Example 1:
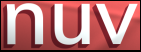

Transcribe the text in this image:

nuv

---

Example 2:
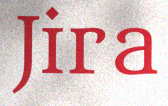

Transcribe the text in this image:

Jira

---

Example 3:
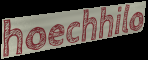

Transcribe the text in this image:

hoechhilo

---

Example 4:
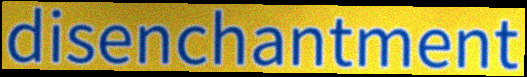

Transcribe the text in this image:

disenchantment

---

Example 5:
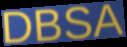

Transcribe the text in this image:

DBSA